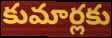
కుమార్లకు